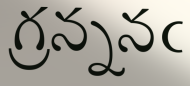
గ్రన్ననఁ